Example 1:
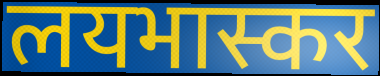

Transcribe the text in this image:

लयभास्कर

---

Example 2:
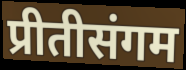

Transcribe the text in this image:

प्रीतीसंगम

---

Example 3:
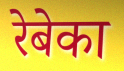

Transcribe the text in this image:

रेबेका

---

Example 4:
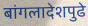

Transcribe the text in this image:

बांगलादेशपुढे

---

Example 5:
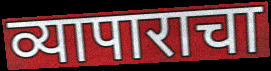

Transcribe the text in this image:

व्यापाराचा